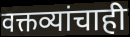
वक्तव्यांचाही